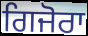
ਗਿਜੋਰਾ